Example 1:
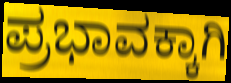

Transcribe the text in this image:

ಪ್ರಭಾವಕ್ಕಾಗಿ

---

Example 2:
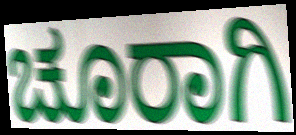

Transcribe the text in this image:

ಚೂರಾಗಿ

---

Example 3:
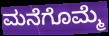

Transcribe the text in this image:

ಮನೆಗೊಮ್ಮೆ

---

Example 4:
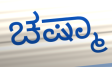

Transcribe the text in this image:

ಚಷ್ಮಾ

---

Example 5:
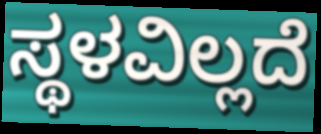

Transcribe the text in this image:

ಸ್ಥಳವಿಲ್ಲದೆ